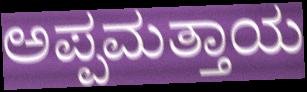
ಅಪ್ಪಮತ್ತಾಯ